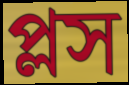
প্লস